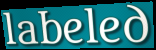
labeled